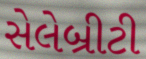
સેલેબ્રીટી